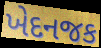
ખેદનજક